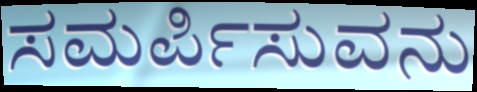
ಸಮರ್ಪಿಸುವನು